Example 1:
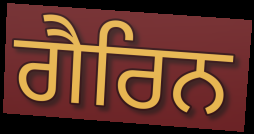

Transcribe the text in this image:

ਗੈਰਿਨ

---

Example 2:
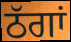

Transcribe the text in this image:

ਠੱਗਾਂ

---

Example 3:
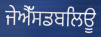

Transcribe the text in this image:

ਜੇਐੱਸਡਬਲਿਊ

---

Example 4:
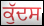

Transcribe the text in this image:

ਕੁੱਦਸ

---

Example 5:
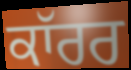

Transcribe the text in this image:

ਕਾੱਰਰ